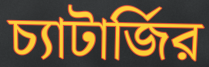
চ্যাটার্জির